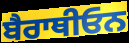
ਬੈਰਾਥੀਓਨ